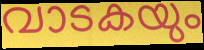
വാടകയും